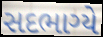
સદભાગ્યે